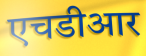
एचडीआर